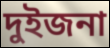
দুইজনা